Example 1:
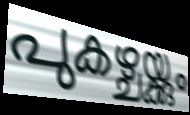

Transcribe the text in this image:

പുകഴ്ചയ്ക്കും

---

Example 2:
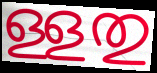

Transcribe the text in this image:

ള്ളതു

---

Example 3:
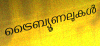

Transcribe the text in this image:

ട്രൈബ്യൂണലുകൾ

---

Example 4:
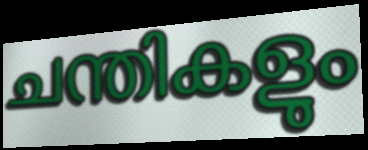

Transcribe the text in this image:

ചന്തികളും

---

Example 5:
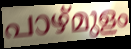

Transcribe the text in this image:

പാഴ്മുളം